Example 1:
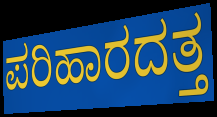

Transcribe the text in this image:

ಪರಿಹಾರದತ್ತ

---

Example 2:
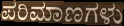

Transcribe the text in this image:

ಪರಿಮಾಣಗಳು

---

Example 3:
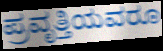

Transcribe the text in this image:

ಪ್ರವೃತ್ತಿಯವರೂ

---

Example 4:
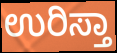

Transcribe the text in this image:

ಉರಿಸ್ತಾ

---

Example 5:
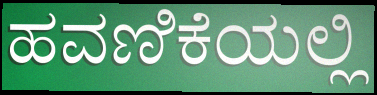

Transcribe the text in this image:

ಹವಣಿಕೆಯಲ್ಲಿ